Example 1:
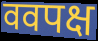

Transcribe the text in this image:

ववपक्ष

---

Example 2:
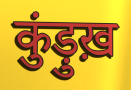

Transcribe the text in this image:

कुंड़ुख़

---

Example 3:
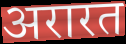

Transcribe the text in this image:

अरारत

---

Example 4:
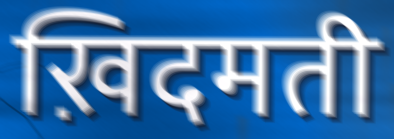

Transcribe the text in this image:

ख़िदमती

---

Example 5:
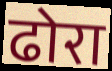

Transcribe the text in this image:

ढोरा